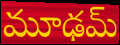
మూఢమ్